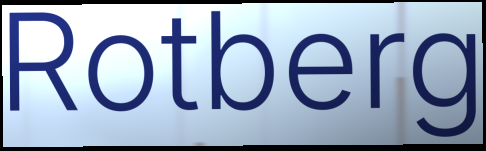
Rotberg